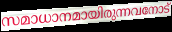
സമാധാനമായിരുന്നവനോട്